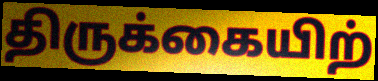
திருக்கையிற்